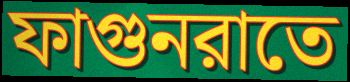
ফাগুনরাতে